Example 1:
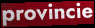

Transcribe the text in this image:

provincie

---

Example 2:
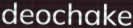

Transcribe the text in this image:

deochake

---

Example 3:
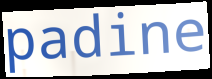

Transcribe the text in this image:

padine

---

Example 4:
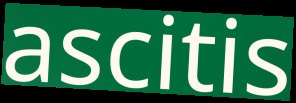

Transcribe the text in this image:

ascitis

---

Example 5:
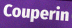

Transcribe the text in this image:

Couperin